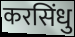
करसिंधु